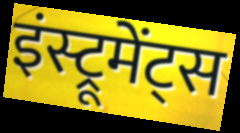
इंस्‍ट्रूमेंट्स